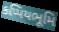
કપ્પિયભૂમિ